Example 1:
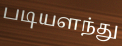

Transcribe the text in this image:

படியளந்து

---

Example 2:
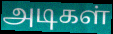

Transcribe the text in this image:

அடிகள்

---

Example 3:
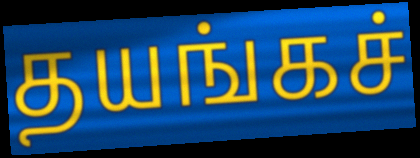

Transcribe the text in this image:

தயங்கச்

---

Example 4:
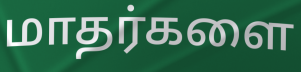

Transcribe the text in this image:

மாதர்களை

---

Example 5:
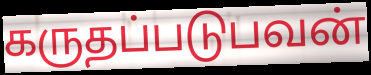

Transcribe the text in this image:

கருதப்படுபவன்